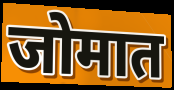
जोमात